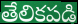
తేలికపడి